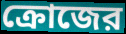
ক্রোজের